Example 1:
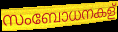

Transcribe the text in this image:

സംബോധനകള്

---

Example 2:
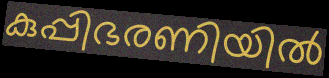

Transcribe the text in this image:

കുപ്പിഭരണിയിൽ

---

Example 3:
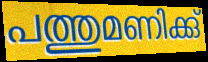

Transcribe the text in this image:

പത്തുമണിക്കു്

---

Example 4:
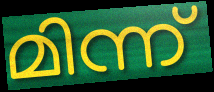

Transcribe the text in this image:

മിന്ന്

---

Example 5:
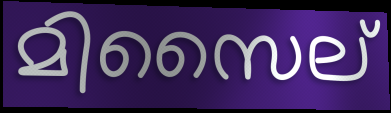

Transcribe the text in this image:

മിസൈല്